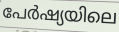
പേർഷ്യയിലെ